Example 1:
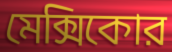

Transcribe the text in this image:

মেক্সিকোর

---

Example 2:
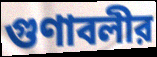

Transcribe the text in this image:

গুণাবলীর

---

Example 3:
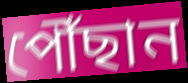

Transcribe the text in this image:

পৌঁছান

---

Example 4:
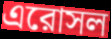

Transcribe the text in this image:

এরোসল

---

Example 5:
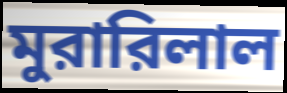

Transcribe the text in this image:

মুরারিলাল